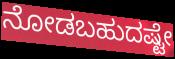
ನೋಡಬಹುದಷ್ಟೇ